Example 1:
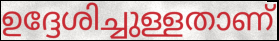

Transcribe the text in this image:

ഉദ്ദേശിച്ചുള്ളതാണ്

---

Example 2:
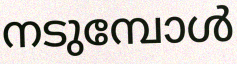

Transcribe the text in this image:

നടുമ്പോൾ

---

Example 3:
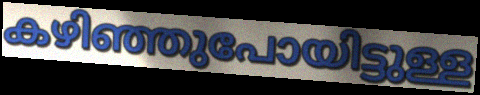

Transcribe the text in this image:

കഴിഞ്ഞുപോയിട്ടുള്ള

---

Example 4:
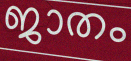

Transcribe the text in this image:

ജാതം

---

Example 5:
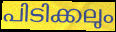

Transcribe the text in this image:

പിടിക്കലും